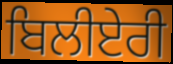
ਬਿਲੀਏਰੀ